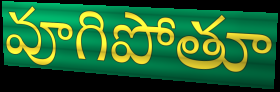
వూగిపోతూ